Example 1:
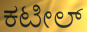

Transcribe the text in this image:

ಕಟೀಲ್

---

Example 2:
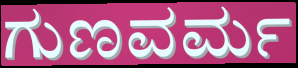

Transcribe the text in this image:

ಗುಣವರ್ಮ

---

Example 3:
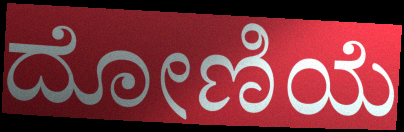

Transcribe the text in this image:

ದೋಣಿಯೆ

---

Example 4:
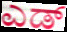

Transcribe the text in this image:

ಎಡ್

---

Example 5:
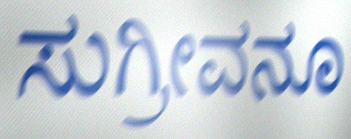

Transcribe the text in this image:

ಸುಗ್ರೀವನೂ